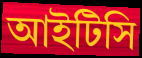
আইটিসি